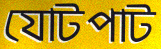
যোটপাট